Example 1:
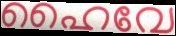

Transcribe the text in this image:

ഹൈവേ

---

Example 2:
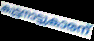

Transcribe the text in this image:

കുട്ടനാട്ടുകാരന്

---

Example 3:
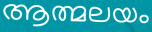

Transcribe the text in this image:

ആത്മലയം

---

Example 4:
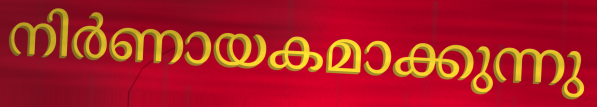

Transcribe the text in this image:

നിർണായകമാക്കുന്നു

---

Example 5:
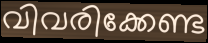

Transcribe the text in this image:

വിവരിക്കേണ്ട